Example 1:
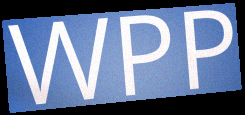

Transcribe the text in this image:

WPP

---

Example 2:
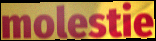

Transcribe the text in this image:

molestie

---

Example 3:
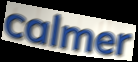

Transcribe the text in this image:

calmer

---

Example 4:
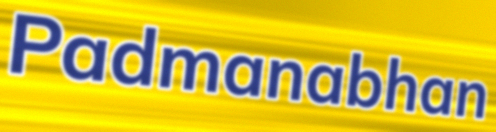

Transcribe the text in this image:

Padmanabhan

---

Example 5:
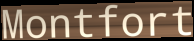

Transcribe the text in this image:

Montfort